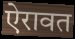
ऐरावत